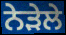
ਨੇੜੇਲੇ